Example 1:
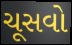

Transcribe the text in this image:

ચૂસવો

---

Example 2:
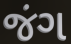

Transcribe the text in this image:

જંગ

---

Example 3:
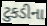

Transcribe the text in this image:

ટુકડીના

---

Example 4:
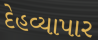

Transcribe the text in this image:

દેહવ્યાપાર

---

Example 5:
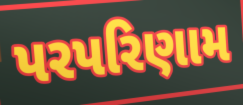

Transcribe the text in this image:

પરપરિણામ